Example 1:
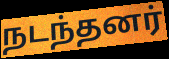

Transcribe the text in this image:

நடந்தனர்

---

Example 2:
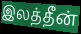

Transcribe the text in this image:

இலத்தீன்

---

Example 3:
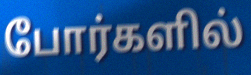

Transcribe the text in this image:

போர்களில்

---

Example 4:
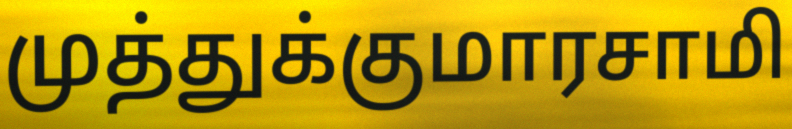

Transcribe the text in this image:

முத்துக்குமாரசாமி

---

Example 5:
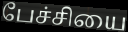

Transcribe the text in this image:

பேச்சியை